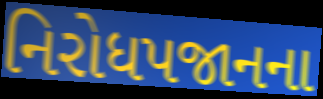
નિરોધપજાનના